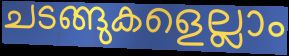
ചടങ്ങുകളെല്ലാം